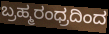
ಬ್ರಹ್ಮರಂಧ್ರದಿಂದ